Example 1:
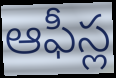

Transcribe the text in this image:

ఆఫీస్ల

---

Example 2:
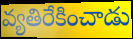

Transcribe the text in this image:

వ్యతిరేకించాడు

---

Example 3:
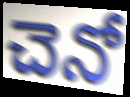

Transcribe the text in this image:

చెనో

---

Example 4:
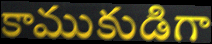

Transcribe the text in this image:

కాముకుడిగా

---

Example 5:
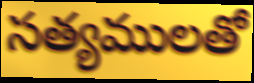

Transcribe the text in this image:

సత్యములతో